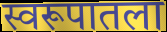
स्वरूपातला